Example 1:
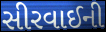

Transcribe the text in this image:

સીરવાઈની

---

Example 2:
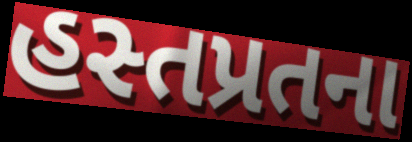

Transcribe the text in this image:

હસ્તપ્રતના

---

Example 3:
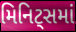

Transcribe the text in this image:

મિનિટ્સમાં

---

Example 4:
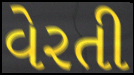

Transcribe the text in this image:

વેરતી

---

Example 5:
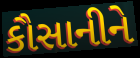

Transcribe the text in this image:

કૌસાનીને